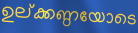
ഉല്ക്കണ്ഠയോടെ